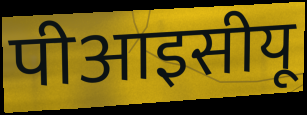
पीआइसीयू